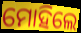
ମୋହିଲେ